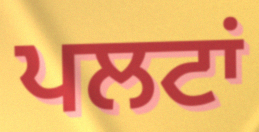
ਪਲਟਾਂ